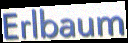
Erlbaum